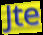
Jte